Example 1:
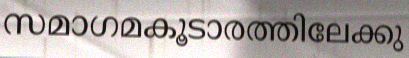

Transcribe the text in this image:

സമാഗമകൂടാരത്തിലേക്കു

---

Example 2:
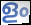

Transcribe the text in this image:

ളം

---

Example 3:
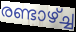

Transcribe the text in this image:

രണ്ടാഴ്ച്ച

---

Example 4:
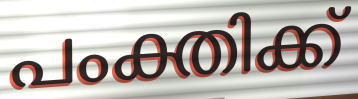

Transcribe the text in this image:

പംക്തിക്ക്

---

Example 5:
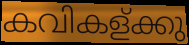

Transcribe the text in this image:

കവികള്ക്കു